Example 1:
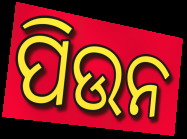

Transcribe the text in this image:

ପିଉନ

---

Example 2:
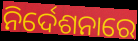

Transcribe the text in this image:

ନିର୍ଦେଶନାରେ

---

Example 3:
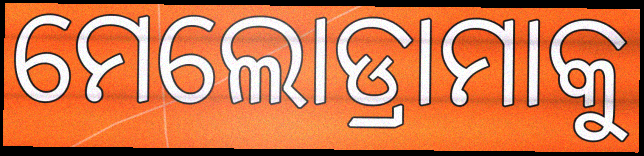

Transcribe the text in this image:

ମେଲୋଡ୍ରାମାକୁ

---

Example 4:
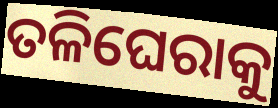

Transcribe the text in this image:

ତଳିଘେରାକୁ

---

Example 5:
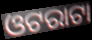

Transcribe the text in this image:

ଓଟରାଟା